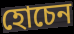
হোচেন